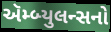
ઍમ્બ્યુલન્સનો